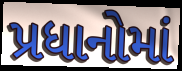
પ્રધાનોમાં